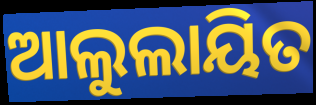
ଆଲୁଲାୟିତ